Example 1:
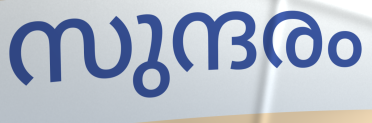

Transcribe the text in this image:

സുന്ദരം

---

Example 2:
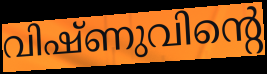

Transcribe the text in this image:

വിഷ്ണുവിന്റെ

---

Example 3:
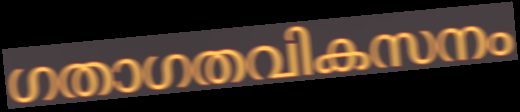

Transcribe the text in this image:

ഗതാഗതവികസനം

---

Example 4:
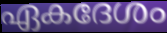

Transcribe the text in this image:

ഏകദേശം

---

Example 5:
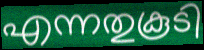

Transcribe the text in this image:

എന്നതുകൂടി